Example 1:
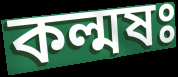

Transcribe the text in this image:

কল্মষঃ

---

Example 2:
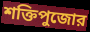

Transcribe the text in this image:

শক্তিপুজোর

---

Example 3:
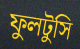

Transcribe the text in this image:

ফুলটুসি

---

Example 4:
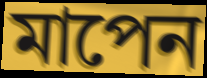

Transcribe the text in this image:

মাপেন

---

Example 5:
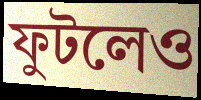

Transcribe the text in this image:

ফুটলেও